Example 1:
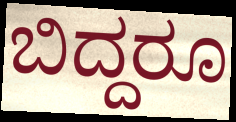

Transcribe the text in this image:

ಬಿದ್ದರೂ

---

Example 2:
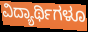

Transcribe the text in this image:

ವಿದ್ಯಾರ್ಥಿಗಳೂ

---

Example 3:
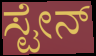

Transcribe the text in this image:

ಸ್ಟೇನ್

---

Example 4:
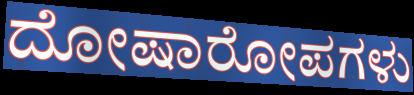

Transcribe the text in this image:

ದೋಷಾರೋಪಗಳು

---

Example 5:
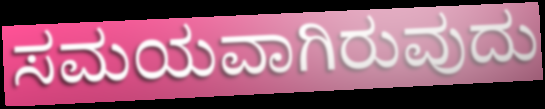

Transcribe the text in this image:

ಸಮಯವಾಗಿರುವುದು